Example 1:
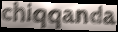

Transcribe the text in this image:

chiqqanda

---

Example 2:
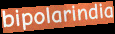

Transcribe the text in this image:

bipolarindia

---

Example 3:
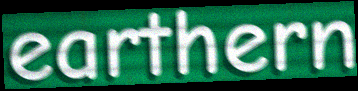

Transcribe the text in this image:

earthern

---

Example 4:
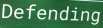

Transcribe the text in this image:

Defending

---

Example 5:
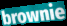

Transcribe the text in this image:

brownie